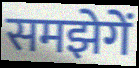
समझेगें